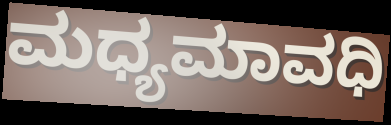
ಮಧ್ಯಮಾವಧಿ